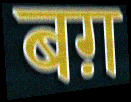
बग़